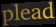
plead